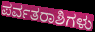
ಪರ್ವತರಾಶಿಗಳು